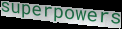
superpowers